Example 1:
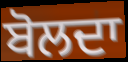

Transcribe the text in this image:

ਬੋਲਦਾ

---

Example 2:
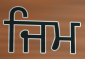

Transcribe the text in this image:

ਜਿਮ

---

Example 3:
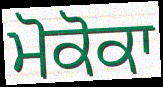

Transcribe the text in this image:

ਮੋਕੋਕਾ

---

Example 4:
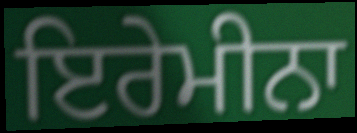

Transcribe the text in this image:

ਇਰੇਮੀਨਾ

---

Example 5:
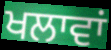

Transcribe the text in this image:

ਖਲਾਵਾਂ